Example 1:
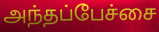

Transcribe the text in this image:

அந்தப்பேச்சை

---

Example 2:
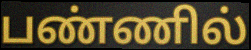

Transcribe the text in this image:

பண்ணில்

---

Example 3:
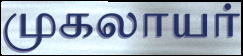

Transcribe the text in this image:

முகலாயர்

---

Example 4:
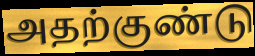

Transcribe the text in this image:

அதற்குண்டு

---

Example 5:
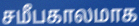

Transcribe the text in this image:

சமீபகாலமாக